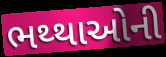
ભથ્થાઓની